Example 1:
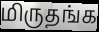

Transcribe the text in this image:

மிருதங்க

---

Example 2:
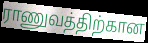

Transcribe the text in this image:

ராணுவத்திற்கான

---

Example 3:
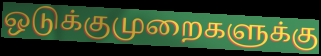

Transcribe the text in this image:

ஒடுக்குமுறைகளுக்கு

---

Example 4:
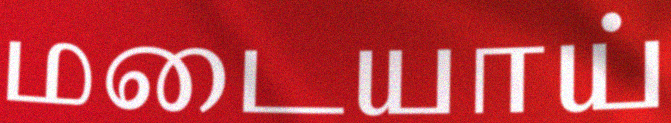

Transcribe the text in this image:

மடையாய்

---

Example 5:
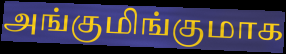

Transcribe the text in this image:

அங்குமிங்குமாக